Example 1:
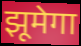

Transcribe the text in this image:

झूमेगा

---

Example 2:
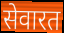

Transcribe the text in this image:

सेवारत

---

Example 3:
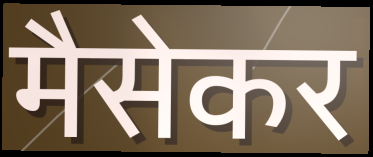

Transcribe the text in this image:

मैसेकर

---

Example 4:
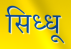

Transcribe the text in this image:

सिध्धू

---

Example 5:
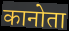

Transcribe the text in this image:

कानोता